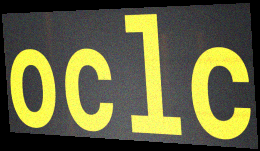
oclc